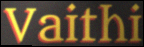
Vaithi